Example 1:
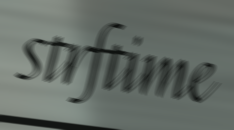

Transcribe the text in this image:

strftime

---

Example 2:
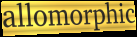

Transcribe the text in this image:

allomorphic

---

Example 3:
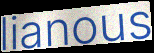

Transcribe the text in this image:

lianous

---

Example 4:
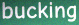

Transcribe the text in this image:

bucking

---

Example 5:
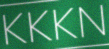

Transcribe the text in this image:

KKKN